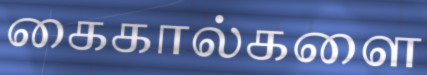
கைகால்களை